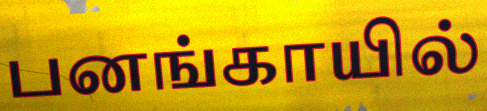
பனங்காயில்